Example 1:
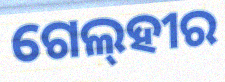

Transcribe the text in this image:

ଗେଲ୍‌ହୀର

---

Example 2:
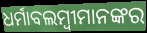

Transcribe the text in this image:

ଧର୍ମାବଲମ୍ବୀମାନଙ୍କର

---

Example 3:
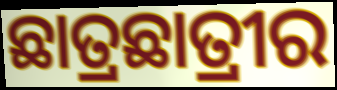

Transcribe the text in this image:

ଛାତ୍ରଛାତ୍ରୀର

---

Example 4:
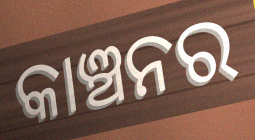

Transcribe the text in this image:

କାଞ୍ଚନର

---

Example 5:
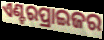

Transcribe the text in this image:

ଏଣ୍ଟରପ୍ରାଇଜର